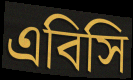
এবিসি